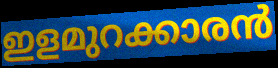
ഇളമുറക്കാരൻ